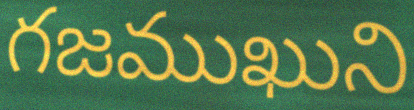
గజముఖుని